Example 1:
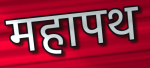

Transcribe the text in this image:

महापथ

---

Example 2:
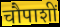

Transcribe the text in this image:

चौपाशीं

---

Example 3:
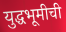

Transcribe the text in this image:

युद्धभूमीची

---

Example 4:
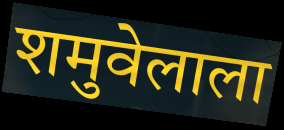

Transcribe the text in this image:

शमुवेलाला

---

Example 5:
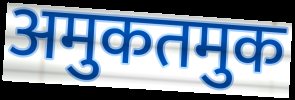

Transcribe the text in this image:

अमुकतमुक